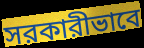
সরকারীভাবে